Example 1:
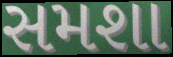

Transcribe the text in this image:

સમશા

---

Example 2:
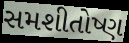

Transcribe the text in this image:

સમશીતોષ્ણ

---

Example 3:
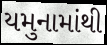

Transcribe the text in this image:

યમુનામાંથી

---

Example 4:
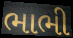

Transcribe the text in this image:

ભાભી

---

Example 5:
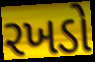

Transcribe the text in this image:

રખડો